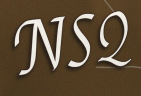
NSQ